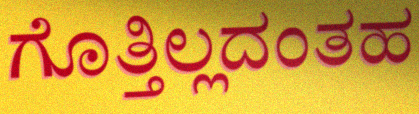
ಗೊತ್ತಿಲ್ಲದಂತಹ